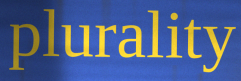
plurality